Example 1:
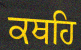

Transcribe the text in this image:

ਕਥਹਿ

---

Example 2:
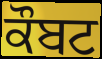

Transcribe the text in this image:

ਕੌਬਟ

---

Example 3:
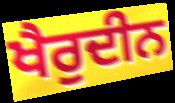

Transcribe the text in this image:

ਖੈਰੁਦੀਨ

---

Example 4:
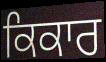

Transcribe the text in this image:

ਕਿਕਾਰ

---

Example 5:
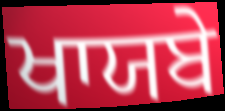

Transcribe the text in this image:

ਖਾਯਬੇ